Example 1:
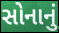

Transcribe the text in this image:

સોનાનું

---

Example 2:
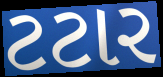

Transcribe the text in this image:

ટટાર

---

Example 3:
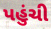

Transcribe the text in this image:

પહુંચી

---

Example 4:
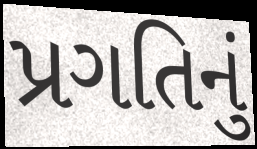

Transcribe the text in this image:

પ્રગતિનું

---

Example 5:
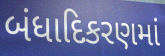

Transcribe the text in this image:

બંધાદિકરણમાં